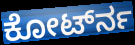
ಕೋರ್ಟ್‍ನ